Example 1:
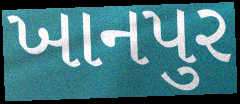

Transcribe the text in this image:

ખાનપુર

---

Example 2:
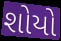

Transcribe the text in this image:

શોયો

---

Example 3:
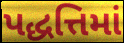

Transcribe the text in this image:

પદ્ધત્તિમાં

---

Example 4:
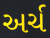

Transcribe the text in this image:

અર્ચ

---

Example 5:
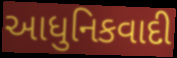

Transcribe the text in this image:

આધુનિકવાદી